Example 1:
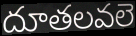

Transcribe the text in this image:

దూతలవలె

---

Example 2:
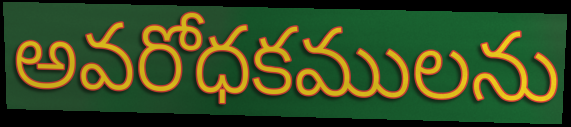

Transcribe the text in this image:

అవరోధకములను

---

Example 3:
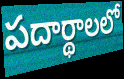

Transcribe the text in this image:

పదార్థాలలో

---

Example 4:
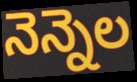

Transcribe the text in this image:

నెన్నెల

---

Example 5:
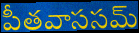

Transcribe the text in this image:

పీతవాససమ్